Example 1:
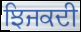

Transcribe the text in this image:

ਝਿਜਕਦੀ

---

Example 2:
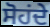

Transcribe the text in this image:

ਸੋਹਂਦੇ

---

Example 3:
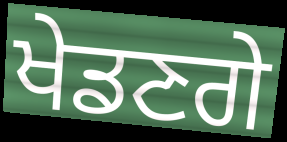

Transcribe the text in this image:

ਖੇਡਣਗੇ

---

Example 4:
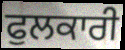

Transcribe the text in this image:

ਫੁਲਕਾਰੀ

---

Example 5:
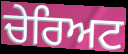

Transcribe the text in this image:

ਚੇਰਿਅਟ